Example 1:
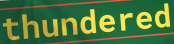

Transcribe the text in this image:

thundered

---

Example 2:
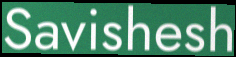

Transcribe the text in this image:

Savishesh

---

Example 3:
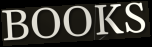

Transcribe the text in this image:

BOOKS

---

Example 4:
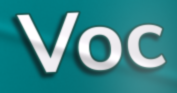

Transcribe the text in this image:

Voc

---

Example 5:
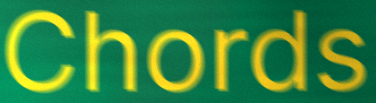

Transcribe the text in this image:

Chords